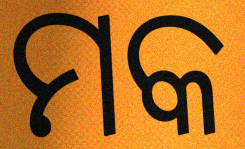
ମକ